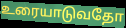
உரையாடுவதோ